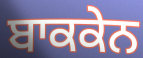
ਬਾਕਕੇਨ